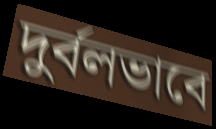
দুর্বলভাবে